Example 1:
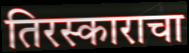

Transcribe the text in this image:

तिरस्काराचा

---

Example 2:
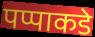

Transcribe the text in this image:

पप्पाकडे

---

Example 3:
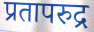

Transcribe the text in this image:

प्रतापरुद्र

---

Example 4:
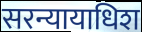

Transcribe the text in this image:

सरन्यायाधिश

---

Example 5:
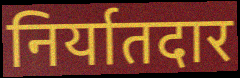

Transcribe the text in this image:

निर्यातदार